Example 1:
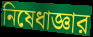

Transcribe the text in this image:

নিষেধাজ্ঞার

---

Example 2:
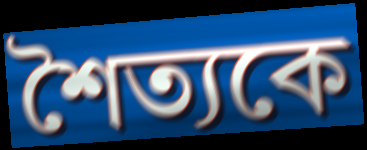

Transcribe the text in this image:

শৈত্যকে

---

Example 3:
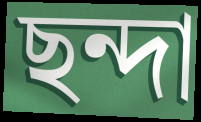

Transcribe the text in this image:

ছন্দা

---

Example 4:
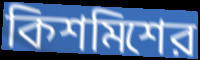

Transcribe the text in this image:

কিশমিশের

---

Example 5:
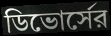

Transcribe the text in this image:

ডিভোর্সের